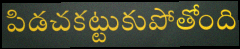
పిడచకట్టుకుపోతోంది